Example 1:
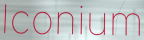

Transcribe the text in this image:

Iconium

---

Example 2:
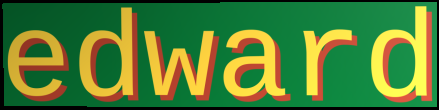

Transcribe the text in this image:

edward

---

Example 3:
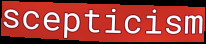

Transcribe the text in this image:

scepticism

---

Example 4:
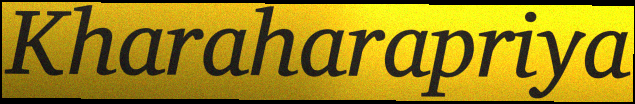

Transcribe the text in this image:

Kharaharapriya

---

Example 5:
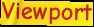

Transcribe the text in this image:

Viewport